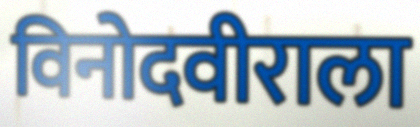
विनोदवीराला